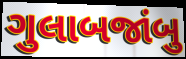
ગુલાબજાંબુ